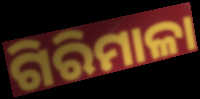
ଗିରିମାଳା